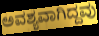
ಅವಶ್ಯವಾಗಿದ್ದವು